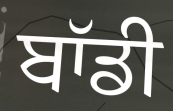
ਬਾੱਡੀ